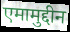
एमामुद्दीन